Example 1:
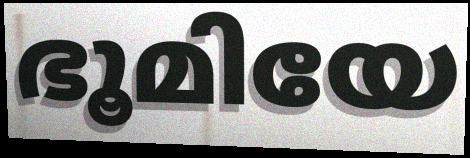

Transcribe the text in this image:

ഭൂമിയേ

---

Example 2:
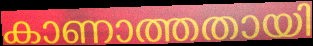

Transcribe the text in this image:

കാണാത്തതായി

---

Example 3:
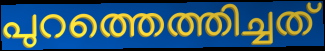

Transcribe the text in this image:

പുറത്തെത്തിച്ചത്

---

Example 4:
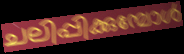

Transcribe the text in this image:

ചലിപ്പിക്കുമ്പോൾ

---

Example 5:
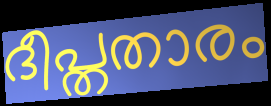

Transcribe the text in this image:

ദീപ്തതാരം